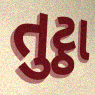
તુટ્ઠા